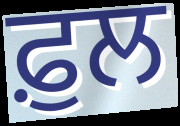
ਫ਼ੁਲ